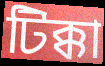
টিক্কা